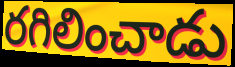
రగిలించాడు